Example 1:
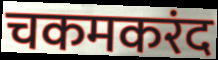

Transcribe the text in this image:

चकमकरंद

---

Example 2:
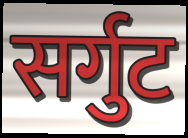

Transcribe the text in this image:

सर्गुट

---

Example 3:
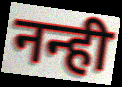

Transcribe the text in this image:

नन्ही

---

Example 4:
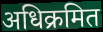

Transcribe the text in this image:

अधिक्रमित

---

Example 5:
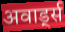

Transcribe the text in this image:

अवार्ड्स